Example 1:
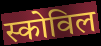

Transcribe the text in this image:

स्कोविल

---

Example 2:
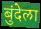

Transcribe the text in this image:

बुंदेला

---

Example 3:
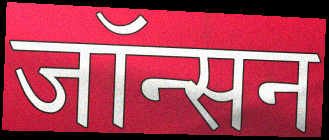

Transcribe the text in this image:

जॉन्सन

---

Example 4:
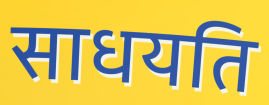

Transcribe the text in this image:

साधयति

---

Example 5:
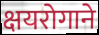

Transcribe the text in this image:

क्षयरोगाने